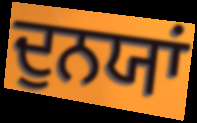
ਦੁਨਯਾਂ